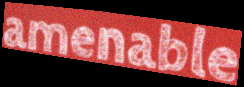
amenable